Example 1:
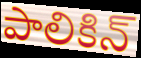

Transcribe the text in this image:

పాలికిన్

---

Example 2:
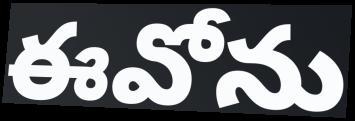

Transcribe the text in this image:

ఈవోను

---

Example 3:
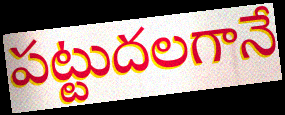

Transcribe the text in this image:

పట్టుదలగానే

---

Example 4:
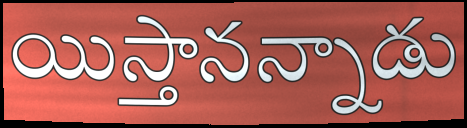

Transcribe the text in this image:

యిస్తానన్నాడు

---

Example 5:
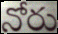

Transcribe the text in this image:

నోరు